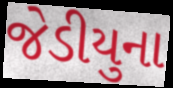
જેડીયુના